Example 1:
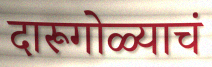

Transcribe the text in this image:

दारूगोळ्याचं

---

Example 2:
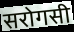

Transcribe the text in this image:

सरोगसी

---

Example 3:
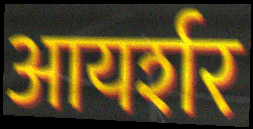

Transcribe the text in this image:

आयर्शर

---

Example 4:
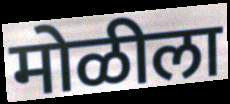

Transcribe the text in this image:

मोळीला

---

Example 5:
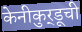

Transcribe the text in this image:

केनीकुर्डूची